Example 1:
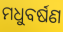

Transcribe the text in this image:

ମଧୁବର୍ଷଣ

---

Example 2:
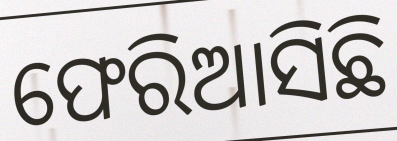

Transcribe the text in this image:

ଫେରିଆସିଛି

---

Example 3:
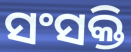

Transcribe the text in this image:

ସଂସକ୍ତି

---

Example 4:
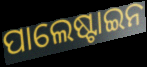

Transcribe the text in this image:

ପାଲେଷ୍ଟାଇନ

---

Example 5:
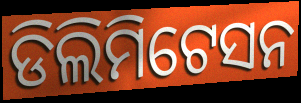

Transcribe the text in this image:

ଡିଲିମିଟେସନ